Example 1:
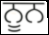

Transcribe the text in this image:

ਨੂਨ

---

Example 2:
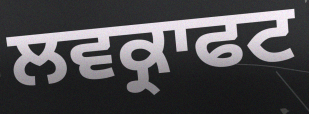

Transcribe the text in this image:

ਲਵਕ੍ਰਾਫਟ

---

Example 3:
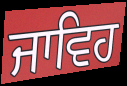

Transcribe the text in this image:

ਜਾਵਿਹ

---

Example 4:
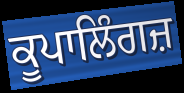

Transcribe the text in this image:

ਕੂਪਾਲਿੰਗਜ਼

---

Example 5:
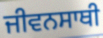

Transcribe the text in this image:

ਜੀਵਨਸਾਥੀ